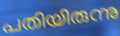
പതിയിരുന്നു